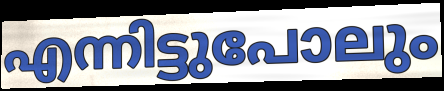
എന്നിട്ടുപോലും